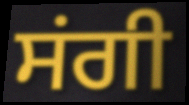
ਸਂਗੀ